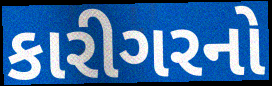
કારીગરનો